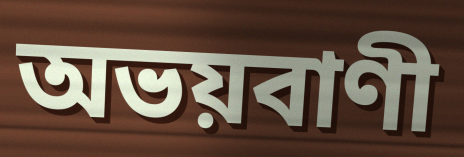
অভয়বাণী